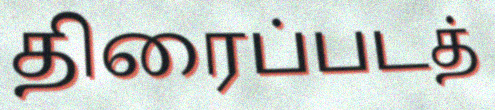
திரைப்படத்